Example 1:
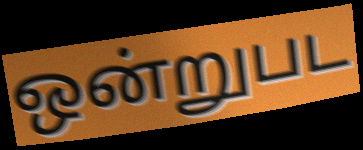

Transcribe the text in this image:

ஒன்றுபட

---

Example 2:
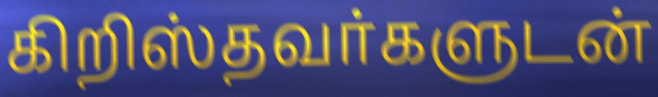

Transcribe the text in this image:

கிறிஸ்தவர்களுடன்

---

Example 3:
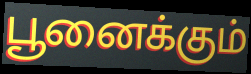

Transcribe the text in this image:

பூனைக்கும்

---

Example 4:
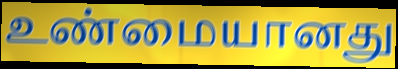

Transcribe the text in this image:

உண்மையானது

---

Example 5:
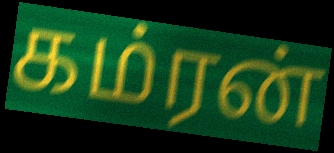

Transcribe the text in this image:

கம்ரன்